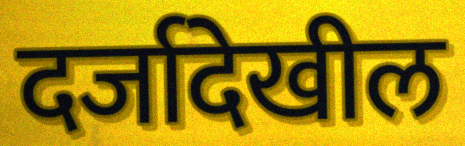
दर्जादेखील